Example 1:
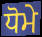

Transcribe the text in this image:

ਧੋਮੇ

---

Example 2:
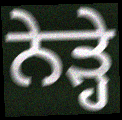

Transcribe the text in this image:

ਨੇੜ੍ਹੇ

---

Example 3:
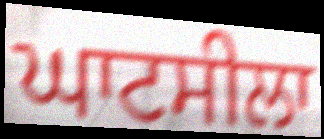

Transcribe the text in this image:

ਘਾਟਸੀਲਾ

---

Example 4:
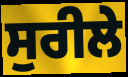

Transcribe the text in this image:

ਸੁਰੀਲੇ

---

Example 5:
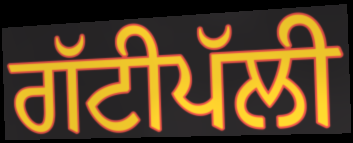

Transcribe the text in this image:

ਗੱਟੀਪੱਲੀ